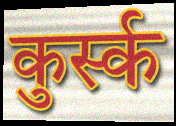
कुर्स्क